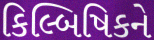
કિલ્બિષિકને